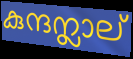
കുന്ദന്ലാല്